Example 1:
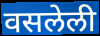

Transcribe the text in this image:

वसलेली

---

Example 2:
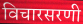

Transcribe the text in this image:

विचारसरणी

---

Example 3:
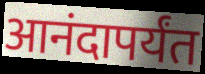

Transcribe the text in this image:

आनंदापर्यंत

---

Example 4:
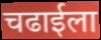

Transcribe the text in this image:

चढाईला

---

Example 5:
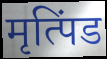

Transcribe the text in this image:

मृत्पिंड